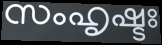
സംഹൃഷ്ടഃ